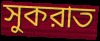
সুকরাত